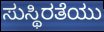
ಸುಸ್ಥಿರತೆಯು